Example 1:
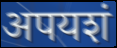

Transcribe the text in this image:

अपयशं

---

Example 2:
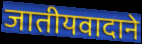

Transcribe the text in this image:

जातीयवादाने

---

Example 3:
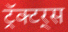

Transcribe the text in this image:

ट्रॅक्टर्स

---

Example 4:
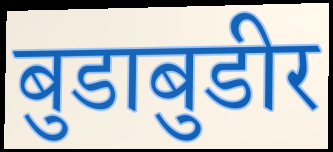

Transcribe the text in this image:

बुडाबुडीर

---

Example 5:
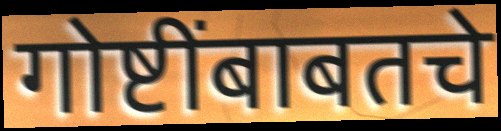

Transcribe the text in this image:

गोष्टींबाबतचे